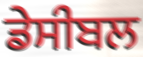
ਡੇਸੀਬਲ